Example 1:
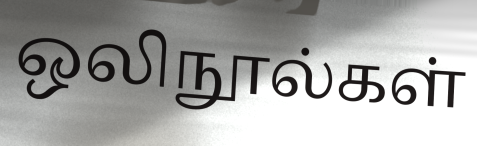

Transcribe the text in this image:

ஒலிநூல்கள்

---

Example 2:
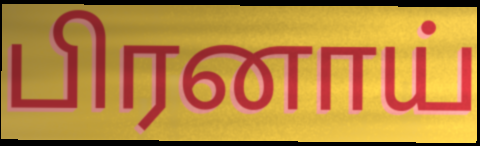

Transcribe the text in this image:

பிரனாய்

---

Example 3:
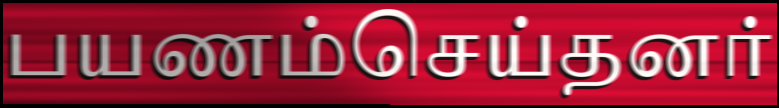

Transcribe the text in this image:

பயணம்செய்தனர்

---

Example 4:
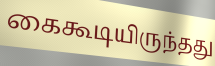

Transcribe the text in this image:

கைகூடியிருந்தது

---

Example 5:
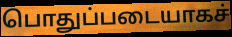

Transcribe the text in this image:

பொதுப்படையாகச்